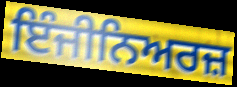
ਇੰਜੀਨਿਅਰਜ਼